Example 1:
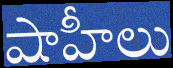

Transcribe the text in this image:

షాహీలు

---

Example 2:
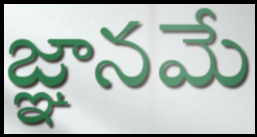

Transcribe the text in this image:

జ్ఞానమే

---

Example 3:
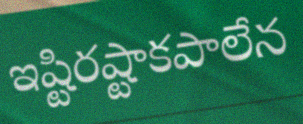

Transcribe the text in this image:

ఇష్టిరష్టాకపాలేన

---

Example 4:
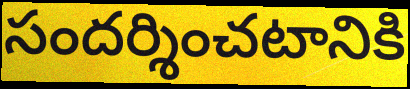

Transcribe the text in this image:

సందర్శించటానికి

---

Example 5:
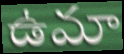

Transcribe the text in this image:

ఉమా